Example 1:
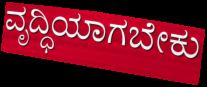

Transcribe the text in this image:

ವೃದ್ಧಿಯಾಗಬೇಕು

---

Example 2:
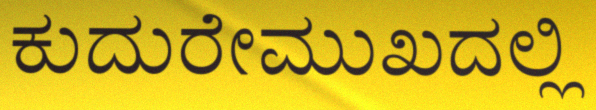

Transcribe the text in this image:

ಕುದುರೇಮುಖದಲ್ಲಿ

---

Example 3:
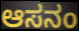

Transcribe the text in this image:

ಆಸನಂ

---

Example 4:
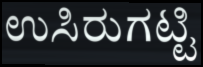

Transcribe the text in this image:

ಉಸಿರುಗಟ್ಟಿ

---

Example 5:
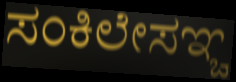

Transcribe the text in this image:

ಸಂಕಿಲೇಸಞ್ಚ